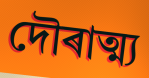
দৌৰাত্ম্য